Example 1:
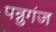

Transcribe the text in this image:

पन्नुगंज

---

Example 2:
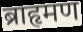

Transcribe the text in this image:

ब्राहृमण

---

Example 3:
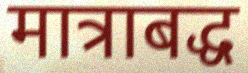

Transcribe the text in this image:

मात्राबद्ध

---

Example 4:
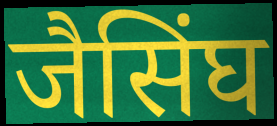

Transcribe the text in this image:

जैसिंघ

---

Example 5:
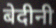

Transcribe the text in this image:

बेदीनी